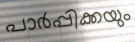
പാർപ്പിക്കയും